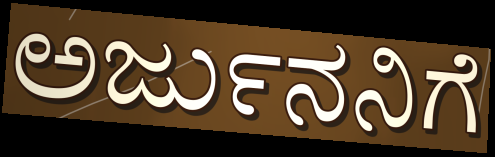
ಅರ್ಜುನನಿಗೆ